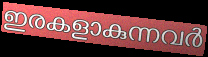
ഇരകളാകുന്നവർ